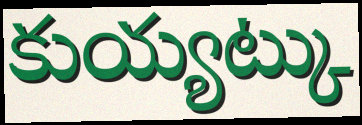
కుయ్యట్కు